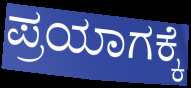
ಪ್ರಯಾಗಕ್ಕೆ